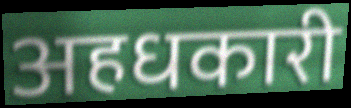
अहधकारी